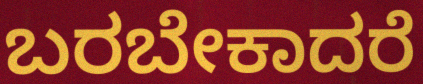
ಬರಬೇಕಾದರೆ